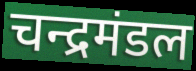
चन्द्रमंडल